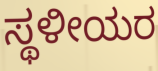
ಸ್ಥಳೀಯರ